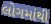
લોગમાંથી